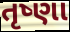
તૃષ્ણા